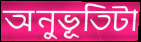
অনুভূতিটা